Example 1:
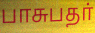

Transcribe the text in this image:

பாசுபதர்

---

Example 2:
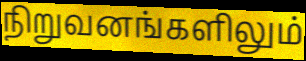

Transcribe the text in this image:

நிறுவனங்களிலும்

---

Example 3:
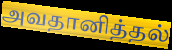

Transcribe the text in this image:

அவதானித்தல்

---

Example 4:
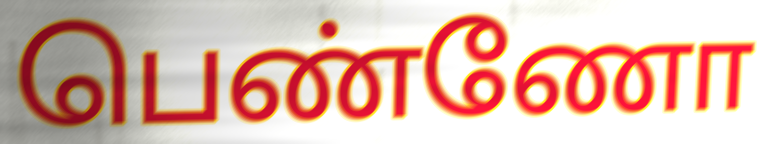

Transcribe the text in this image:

பெண்ணோ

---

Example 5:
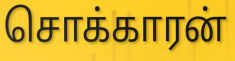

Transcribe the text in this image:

சொக்காரன்